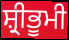
ਸ਼੍ਰੀਭੂਮੀ